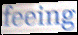
feeing